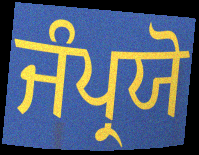
ਜੰਪ੍ਰਯੋ